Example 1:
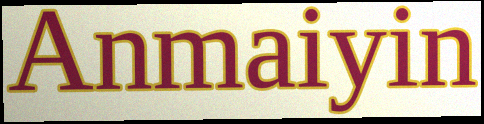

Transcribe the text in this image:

Anmaiyin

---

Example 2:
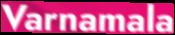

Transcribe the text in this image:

Varnamala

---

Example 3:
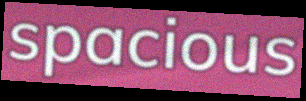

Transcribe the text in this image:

spacious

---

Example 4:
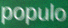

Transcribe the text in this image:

populo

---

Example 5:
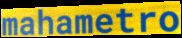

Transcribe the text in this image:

mahametro